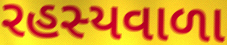
રહસ્યવાળા